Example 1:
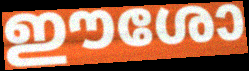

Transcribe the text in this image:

ഈശോ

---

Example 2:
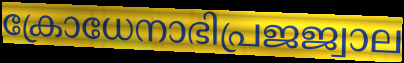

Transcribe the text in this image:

ക്രോധേനാഭിപ്രജജ്വാല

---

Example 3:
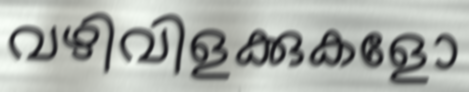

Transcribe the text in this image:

വഴിവിളക്കുകളോ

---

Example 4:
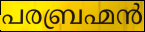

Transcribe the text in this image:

പരബ്രഹ്മൻ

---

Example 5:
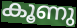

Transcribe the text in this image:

കൂണു